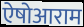
ऐषोआराम